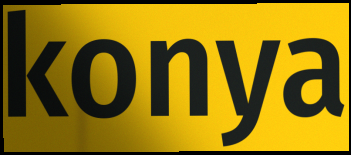
konya